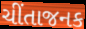
ચીંતાજનક